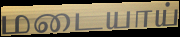
மடையாய்